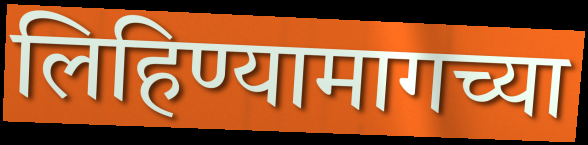
लिहिण्यामागच्या